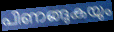
പിണങ്ങുകയും